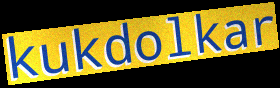
kukdolkar